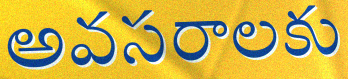
అవసరాలకు